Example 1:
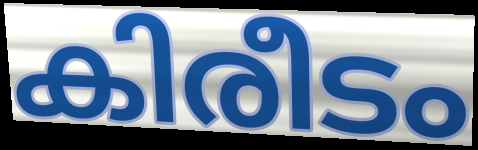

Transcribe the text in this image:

കിരീടം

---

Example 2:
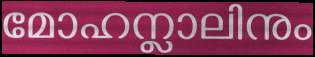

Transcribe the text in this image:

മോഹന്ലാലിനും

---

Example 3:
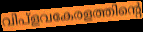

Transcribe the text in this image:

വിപ്ളവകേരളത്തിന്റെ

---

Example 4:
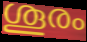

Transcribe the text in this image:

ശൂരം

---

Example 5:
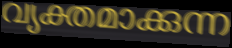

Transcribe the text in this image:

വ്യക്തമാക്കുന്ന